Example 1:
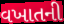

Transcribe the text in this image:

વખાતની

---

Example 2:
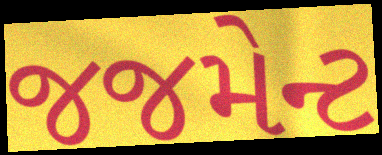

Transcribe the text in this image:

જજમેન્ટ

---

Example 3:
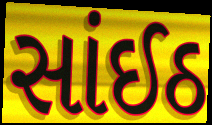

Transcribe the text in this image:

સાંઈઠ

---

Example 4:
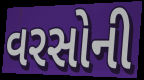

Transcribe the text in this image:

વરસોની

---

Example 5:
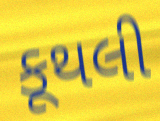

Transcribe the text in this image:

કૂથલી